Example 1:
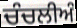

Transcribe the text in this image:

ਚੰਚਲੀਅੰ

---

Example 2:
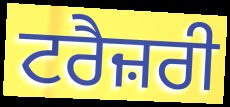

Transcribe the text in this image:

ਟਰੈਜ਼ਰੀ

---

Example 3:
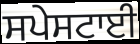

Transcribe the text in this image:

ਸਪੇਸਟਾਈ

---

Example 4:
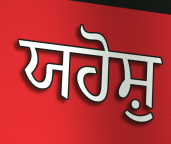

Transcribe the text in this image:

ਯਹੋਸ਼ੁ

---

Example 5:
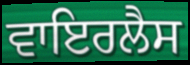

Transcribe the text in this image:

ਵਾਇਰਲੈਸ